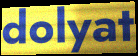
dolyat